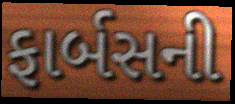
ફાર્બસની